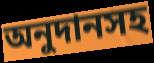
অনুদানসহ